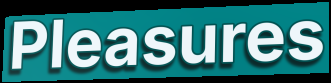
Pleasures